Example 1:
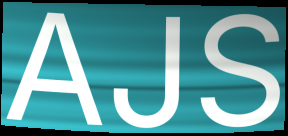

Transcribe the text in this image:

AJS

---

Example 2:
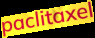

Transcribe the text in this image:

paclitaxel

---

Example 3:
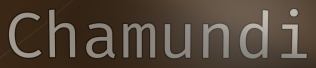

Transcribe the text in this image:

Chamundi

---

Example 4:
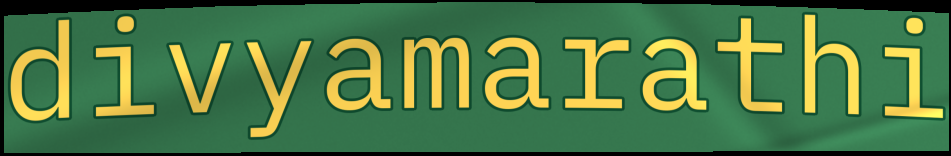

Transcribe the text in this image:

divyamarathi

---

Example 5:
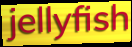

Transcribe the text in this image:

jellyfish